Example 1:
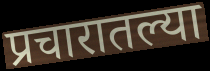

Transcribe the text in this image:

प्रचारातल्या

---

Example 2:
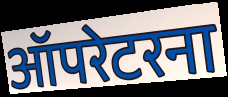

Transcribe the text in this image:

ऑपरेटरना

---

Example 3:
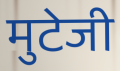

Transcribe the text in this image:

मुटेजी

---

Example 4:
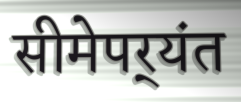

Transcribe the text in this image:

सीमेपर्यंत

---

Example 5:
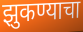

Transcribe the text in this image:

झुकण्याचा